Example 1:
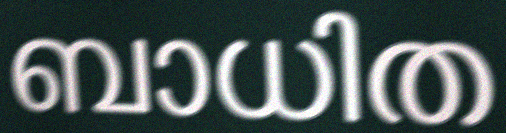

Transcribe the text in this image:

ബാധിത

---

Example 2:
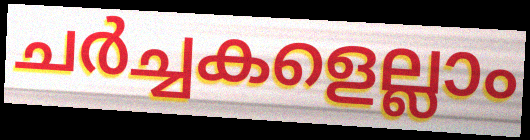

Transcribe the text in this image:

ചർച്ചകളെല്ലാം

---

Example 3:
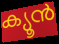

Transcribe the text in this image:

ക്യൂൻ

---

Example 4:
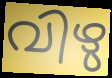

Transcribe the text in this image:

വിഴു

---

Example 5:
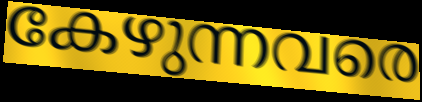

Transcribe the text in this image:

കേഴുന്നവരെ